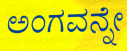
ಅಂಗವನ್ನೇ